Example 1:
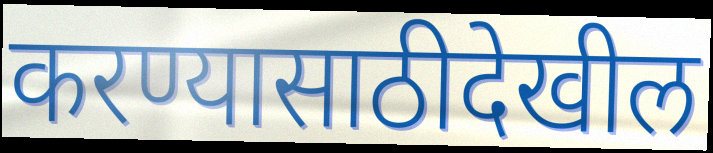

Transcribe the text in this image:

करण्यासाठीदेखील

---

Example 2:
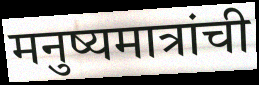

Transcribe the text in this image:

मनुष्यमात्रांची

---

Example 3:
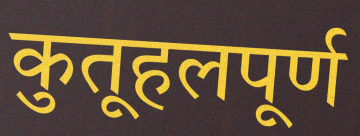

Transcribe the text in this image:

कुतूहलपूर्ण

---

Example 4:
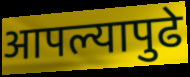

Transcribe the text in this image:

आपल्यापुढे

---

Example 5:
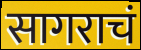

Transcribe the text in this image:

सागराचं